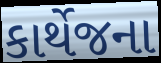
કાર્થેજના